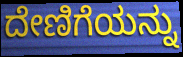
ದೇಣಿಗೆಯನ್ನು